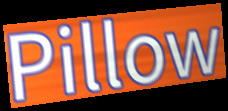
Pillow